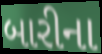
બારીના